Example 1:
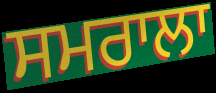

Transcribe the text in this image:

ਸਮਰਾਲਾ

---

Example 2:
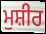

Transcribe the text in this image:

ਮੁਸ਼ੀਰ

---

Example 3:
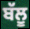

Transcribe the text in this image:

ਬੱਲੂ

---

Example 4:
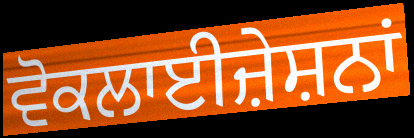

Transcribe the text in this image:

ਵੋਕਲਾਈਜ਼ੇਸ਼ਨਾਂ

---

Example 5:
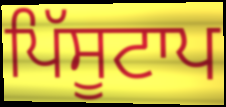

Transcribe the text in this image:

ਪਿੱਸੂਟਾਪ